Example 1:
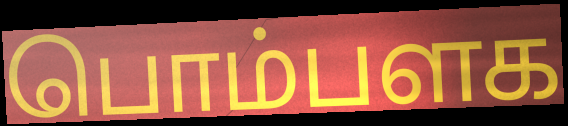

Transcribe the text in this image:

பொம்பளக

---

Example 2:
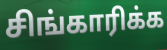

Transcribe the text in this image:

சிங்காரிக்க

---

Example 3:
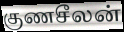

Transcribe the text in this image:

குணசீலன்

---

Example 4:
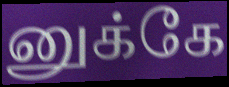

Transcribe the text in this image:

னுக்கே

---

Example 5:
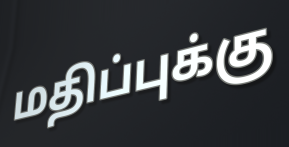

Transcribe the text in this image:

மதிப்புக்கு